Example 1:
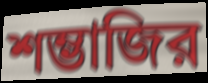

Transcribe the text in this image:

শম্ভাজির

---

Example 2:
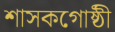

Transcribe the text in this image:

শাসকগোষ্ঠী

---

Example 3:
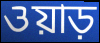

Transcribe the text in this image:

ওয়াড়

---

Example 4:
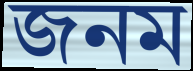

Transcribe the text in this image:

জনম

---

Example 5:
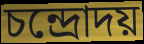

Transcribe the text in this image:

চন্দ্রোদয়